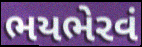
ભયભેરવં